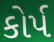
કોર્પ